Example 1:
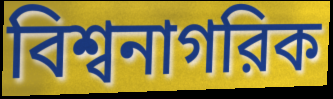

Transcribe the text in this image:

বিশ্বনাগরিক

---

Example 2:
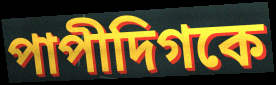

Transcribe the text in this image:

পাপীদিগকে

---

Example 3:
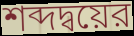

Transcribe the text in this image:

শব্দদ্বয়ের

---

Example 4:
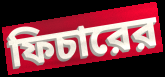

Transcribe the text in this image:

ফিচারের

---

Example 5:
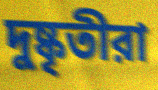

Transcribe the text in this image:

দুষ্কৃতীরা